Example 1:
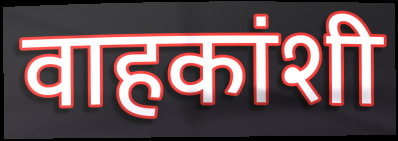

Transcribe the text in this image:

वाहकांशी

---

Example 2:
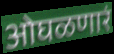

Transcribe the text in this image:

ओघळणारं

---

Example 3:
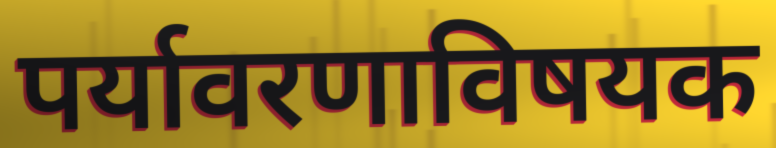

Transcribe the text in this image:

पर्यावरणाविषयक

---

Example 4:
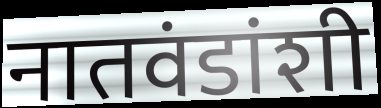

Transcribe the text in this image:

नातवंडांशी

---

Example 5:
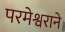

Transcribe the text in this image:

परमेश्वराने